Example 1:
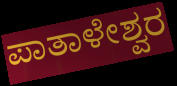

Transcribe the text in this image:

ಪಾತಾಳೇಶ್ವರ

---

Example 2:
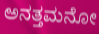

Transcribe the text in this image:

ಅನತ್ತಮನೋ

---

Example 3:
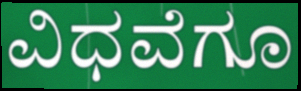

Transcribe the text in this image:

ವಿಧವೆಗೂ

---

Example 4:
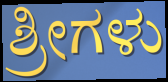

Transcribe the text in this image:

ಶ್ರೀಗಳು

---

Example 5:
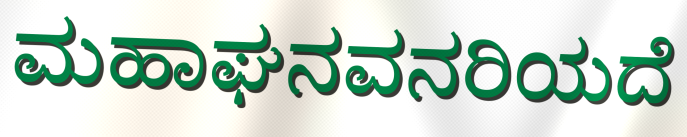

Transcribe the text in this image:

ಮಹಾಘನವನರಿಯದೆ